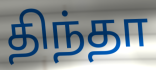
திந்தா